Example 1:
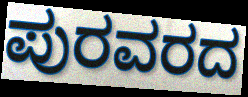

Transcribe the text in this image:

ಪುರವರದ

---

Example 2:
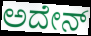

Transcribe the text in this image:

ಅದೇನ್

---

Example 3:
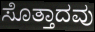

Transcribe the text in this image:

ಸೊತ್ತಾದವು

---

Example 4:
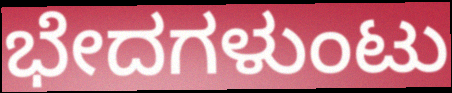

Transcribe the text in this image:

ಭೇದಗಳುಂಟು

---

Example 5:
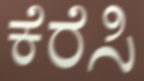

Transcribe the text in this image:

ಕೆರೆಸಿ